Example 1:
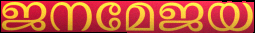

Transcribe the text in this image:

ജനമേജയ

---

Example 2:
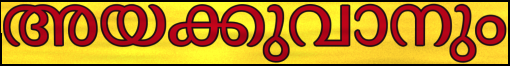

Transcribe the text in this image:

അയക്കുവാനും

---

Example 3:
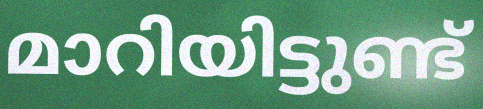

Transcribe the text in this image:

മാറിയിട്ടുണ്ട്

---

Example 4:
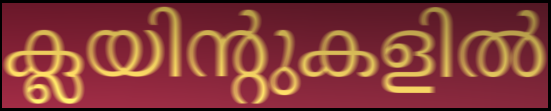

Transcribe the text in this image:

ക്ലയിന്റുകളിൽ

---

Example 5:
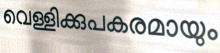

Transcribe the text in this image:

വെള്ളിക്കുപകരമായും